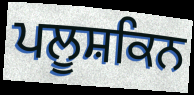
ਪਲੂਸ਼ਕਿਨ